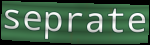
seprate